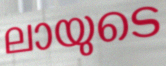
ലായുടെ